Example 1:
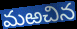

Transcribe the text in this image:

మఱచిన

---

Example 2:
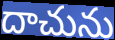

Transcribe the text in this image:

దాచును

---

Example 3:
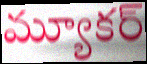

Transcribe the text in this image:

మ్యూకర్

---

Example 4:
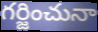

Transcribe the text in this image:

గర్జించునా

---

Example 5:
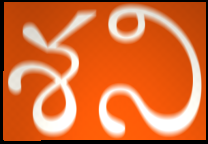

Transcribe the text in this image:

శని